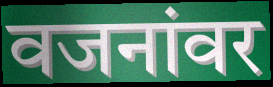
वजनांवर